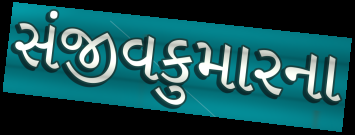
સંજીવકુમારના